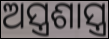
ଅସ୍ତ୍ରଶାସ୍ତ୍ର